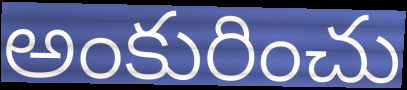
అంకురించు